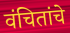
वंचितांचे